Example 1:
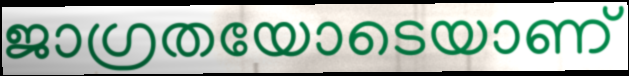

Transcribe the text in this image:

ജാഗ്രതയോടെയാണ്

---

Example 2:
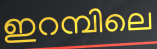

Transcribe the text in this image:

ഇറമ്പിലെ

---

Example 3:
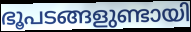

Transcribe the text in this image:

ഭൂപടങ്ങളുണ്ടായി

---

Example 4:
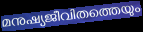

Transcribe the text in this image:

മനുഷ്യജീവിതത്തെയും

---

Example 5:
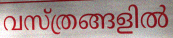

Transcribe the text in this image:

വസ്ത്രങ്ങളിൽ